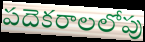
పదెకరాలలోపు